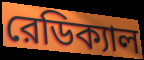
রেডিক্যাল